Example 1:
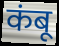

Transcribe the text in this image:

कंबू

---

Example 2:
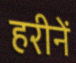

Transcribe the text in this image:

हरीनें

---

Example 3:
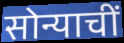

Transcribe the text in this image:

सोन्याचीं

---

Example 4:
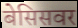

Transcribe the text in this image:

बेसिसवर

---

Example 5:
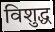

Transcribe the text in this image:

विशुद्ध